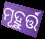
ମୂହୁର୍ତ୍ତ